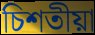
চিশতীয়া